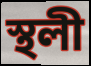
স্থলী